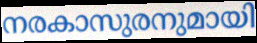
നരകാസുരനുമായി